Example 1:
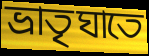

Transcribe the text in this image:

ভ্রাতৃঘাতে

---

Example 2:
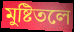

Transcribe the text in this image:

মুষ্টিতলে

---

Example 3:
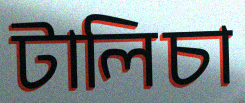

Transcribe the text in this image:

টালিচা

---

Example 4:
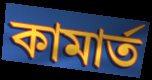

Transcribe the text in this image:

কামার্ত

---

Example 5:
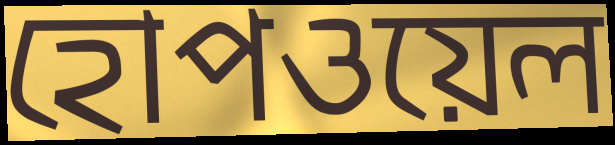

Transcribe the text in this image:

হোপওয়েল